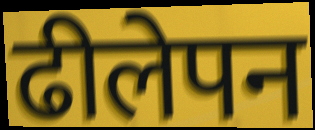
ढीलेपन